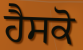
ਹੈਸਕੋ